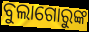
ବୁଲାଗୋରୁଙ୍କ